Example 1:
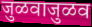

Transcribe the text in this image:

जुळवाजुळव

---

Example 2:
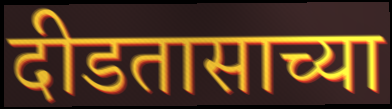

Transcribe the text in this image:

दीडतासाच्या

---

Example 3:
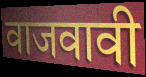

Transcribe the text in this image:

वाजवावी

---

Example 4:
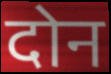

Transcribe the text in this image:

दोन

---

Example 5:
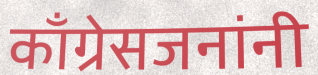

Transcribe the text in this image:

काँग्रेसजनांनी